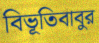
বিভূতিবাবুর